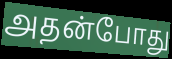
அதன்போது